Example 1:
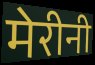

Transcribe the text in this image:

मेरीनी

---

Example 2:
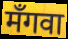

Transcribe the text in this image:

मँगवा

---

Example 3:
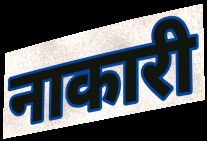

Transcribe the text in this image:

नाकारी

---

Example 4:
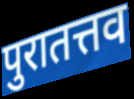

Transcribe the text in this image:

पुरातत्तव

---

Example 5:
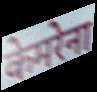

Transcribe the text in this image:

केमरेना